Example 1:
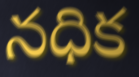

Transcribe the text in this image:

నధిక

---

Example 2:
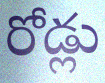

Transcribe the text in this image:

రోడ్లు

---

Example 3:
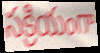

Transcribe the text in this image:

సక్రియంగా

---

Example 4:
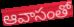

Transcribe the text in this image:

ఆవాసంతో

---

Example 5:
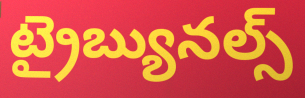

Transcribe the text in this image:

ట్రైబ్యునల్స్